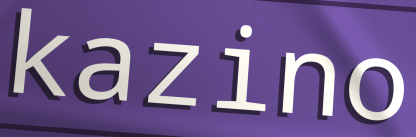
kazino